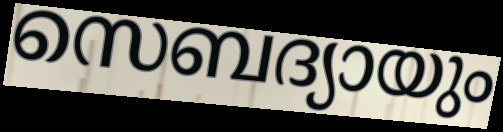
സെബദ്യായും